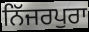
ਨਿੱਜਰਪੁਰਾ